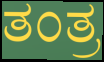
ತಂತ್ರ